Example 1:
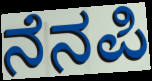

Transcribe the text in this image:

ನೆನಪಿ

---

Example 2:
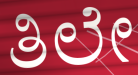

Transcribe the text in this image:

ತಿಲೇ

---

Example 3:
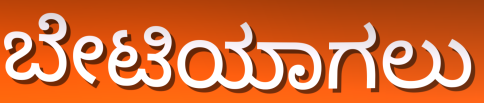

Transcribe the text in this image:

ಬೇಟಿಯಾಗಲು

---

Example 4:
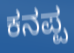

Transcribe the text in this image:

ಕನಪ್ಪ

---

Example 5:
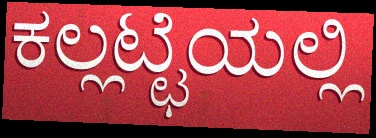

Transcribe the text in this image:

ಕಲ್ಲಟ್ಟೆಯಲ್ಲಿ